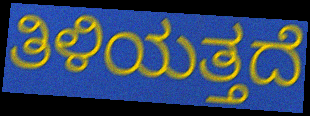
ತಿಳಿಯತ್ತದೆ